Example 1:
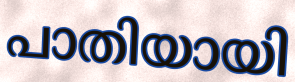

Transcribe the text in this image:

പാതിയായി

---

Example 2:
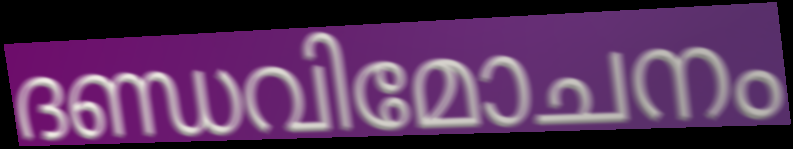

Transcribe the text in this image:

ദണ്ഡവിമോചനം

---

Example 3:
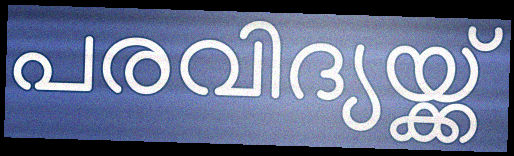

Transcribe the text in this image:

പരവിദ്യയ്ക്ക്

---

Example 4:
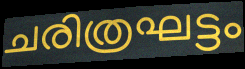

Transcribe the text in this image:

ചരിത്രഘട്ടം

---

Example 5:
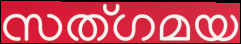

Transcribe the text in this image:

സത്ഗമയ